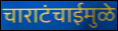
चाराटंचाईमुळे